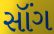
સૉંગ